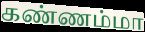
கண்ணம்மா